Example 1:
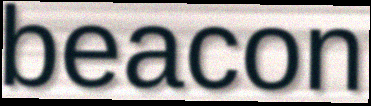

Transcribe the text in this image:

beacon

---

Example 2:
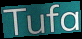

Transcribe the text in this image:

Tufa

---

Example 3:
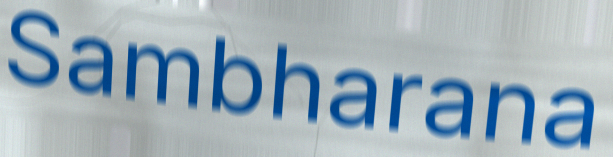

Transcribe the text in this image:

Sambharana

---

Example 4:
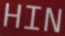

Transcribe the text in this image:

HIN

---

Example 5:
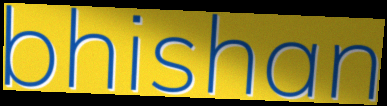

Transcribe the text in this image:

bhishan